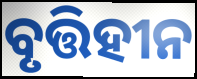
ବୃତ୍ତିହୀନ